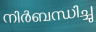
നിർബന്ധിച്ചു